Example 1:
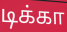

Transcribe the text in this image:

டிக்கா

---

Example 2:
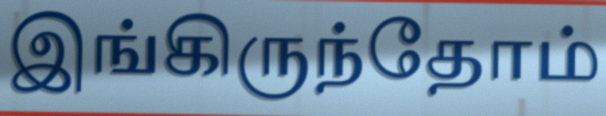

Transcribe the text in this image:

இங்கிருந்தோம்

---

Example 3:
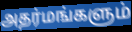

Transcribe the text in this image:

அதர்மங்களும்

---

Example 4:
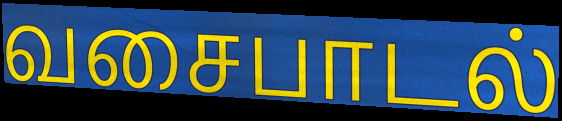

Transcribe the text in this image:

வசைபாடல்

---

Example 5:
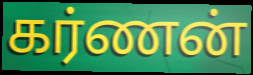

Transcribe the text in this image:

கர்ணன்